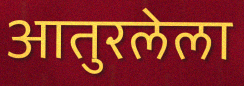
आतुरलेला